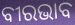
ବୀରଭାବ